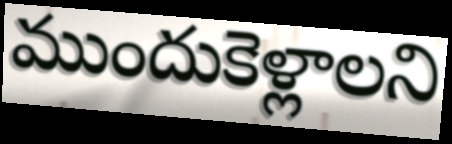
ముందుకెళ్లాలని